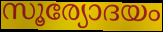
സൂര്യോദയം